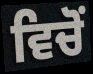
ਵਿਚੋਂ